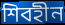
শিবহীন